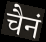
चैनं